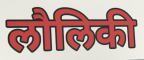
लौलिकी